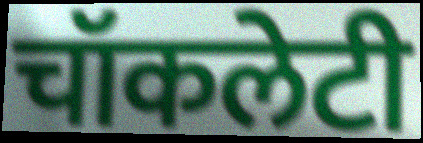
चॉकलेटी